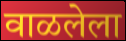
वाळलेला